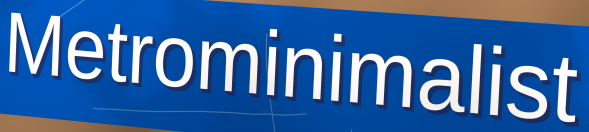
Metrominimalist